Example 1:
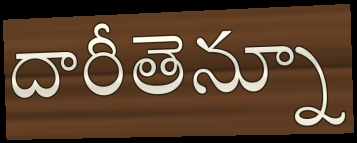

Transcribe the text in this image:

దారీతెన్నూ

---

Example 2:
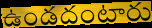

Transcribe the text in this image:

ఉండదంటారు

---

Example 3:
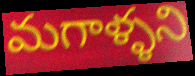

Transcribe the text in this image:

మగాళ్ళని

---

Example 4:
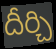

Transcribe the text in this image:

దీర్చి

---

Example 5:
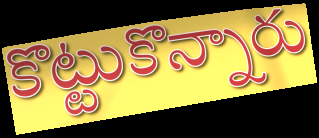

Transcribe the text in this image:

కొట్టుకొన్నారు